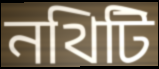
নথিটি